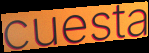
cuesta